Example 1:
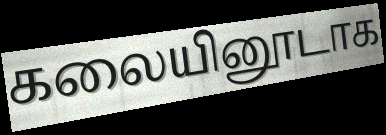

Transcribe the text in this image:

கலையினூடாக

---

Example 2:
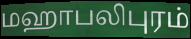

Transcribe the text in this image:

மஹாபலிபுரம்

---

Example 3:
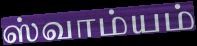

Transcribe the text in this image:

ஸ்வாம்யம்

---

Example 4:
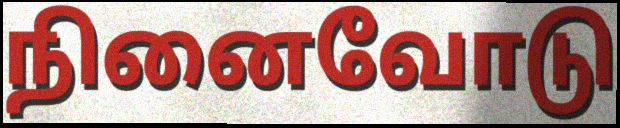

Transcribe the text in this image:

நினைவோடு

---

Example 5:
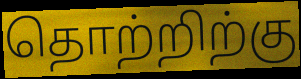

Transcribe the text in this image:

தொற்றிற்கு